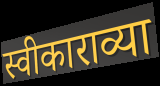
स्वीकाराव्या